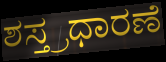
ಶಸ್ತ್ರಧಾರಣೆ